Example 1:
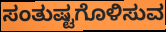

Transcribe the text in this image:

ಸಂತುಷ್ಟಗೊಳಿಸುವ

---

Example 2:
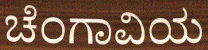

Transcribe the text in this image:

ಚೆಂಗಾವಿಯ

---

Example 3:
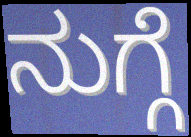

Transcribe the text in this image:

ನುಗ್ಗೆ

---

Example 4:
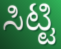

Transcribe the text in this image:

ಸಿಟ್ಟಿ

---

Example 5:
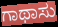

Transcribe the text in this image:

ಗಾಥಾಸು